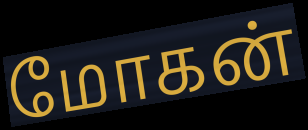
மோகன்